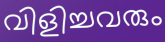
വിളിച്ചവരും